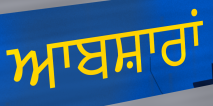
ਆਬਸ਼ਾਰਾਂ